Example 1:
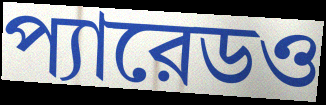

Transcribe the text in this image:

প্যারেডও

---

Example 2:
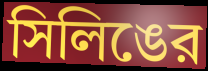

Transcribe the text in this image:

সিলিঙের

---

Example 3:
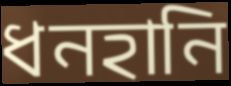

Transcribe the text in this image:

ধনহানি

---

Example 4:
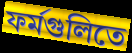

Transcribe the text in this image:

ফর্মগুলিতে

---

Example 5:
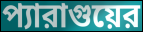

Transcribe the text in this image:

প্যারাগুয়ের